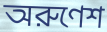
অরুণেশ